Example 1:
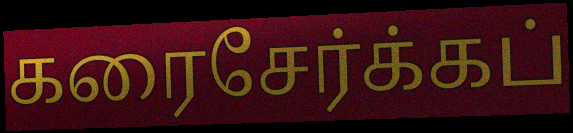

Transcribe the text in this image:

கரைசேர்க்கப்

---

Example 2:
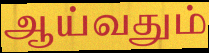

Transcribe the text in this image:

ஆய்வதும்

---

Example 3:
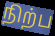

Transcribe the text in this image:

நிற்ப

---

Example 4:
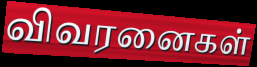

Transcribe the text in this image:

விவரனைகள்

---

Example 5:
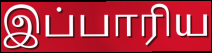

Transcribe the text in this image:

இப்பாரிய